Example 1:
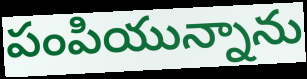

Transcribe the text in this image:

పంపియున్నాను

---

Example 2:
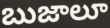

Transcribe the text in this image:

బుజాలూ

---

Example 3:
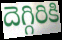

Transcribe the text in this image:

దెగ్గిరికి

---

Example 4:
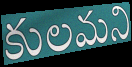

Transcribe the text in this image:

కులమని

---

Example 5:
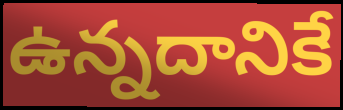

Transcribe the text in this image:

ఉన్నదానికే